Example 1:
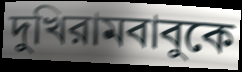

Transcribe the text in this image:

দুখিরামবাবুকে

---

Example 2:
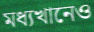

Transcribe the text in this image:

মধ্যখানেও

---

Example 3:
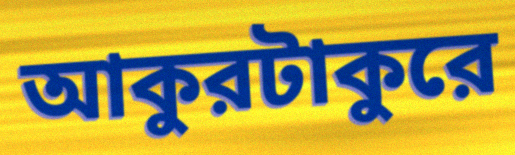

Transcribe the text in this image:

আকুরটাকুরে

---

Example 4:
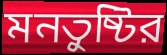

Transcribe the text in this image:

মনতুষ্টির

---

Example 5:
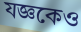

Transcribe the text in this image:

যজ্ঞকেও